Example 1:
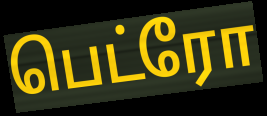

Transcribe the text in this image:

பெட்ரோ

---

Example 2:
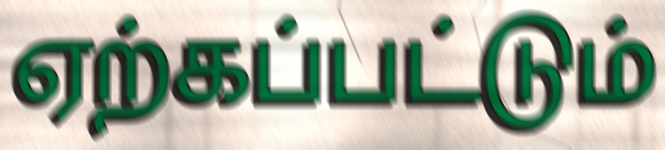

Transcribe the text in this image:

ஏற்கப்பட்டும்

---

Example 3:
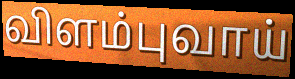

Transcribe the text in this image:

விளம்புவாய்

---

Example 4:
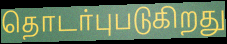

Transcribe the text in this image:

தொடர்புபடுகிறது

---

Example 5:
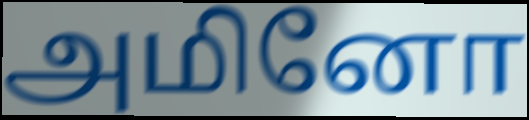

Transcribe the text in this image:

அமினோ